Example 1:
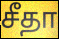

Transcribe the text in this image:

சீதா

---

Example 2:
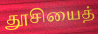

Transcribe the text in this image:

தூசியைத்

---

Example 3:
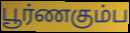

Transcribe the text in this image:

பூர்ணகும்ப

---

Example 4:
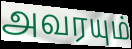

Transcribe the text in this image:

அவரயும்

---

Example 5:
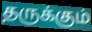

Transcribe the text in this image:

தருக்கும்